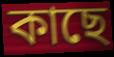
কাছে